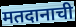
मतदानाची